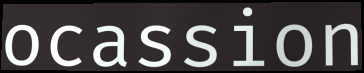
ocassion